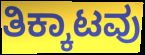
ತಿಕ್ಕಾಟವು